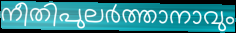
നീതിപുലർത്താനാവും